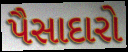
પૈસાદારો